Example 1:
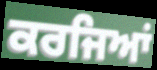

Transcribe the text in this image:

ਕਰਜਿਆਂ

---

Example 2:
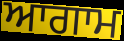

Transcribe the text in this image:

ਆਗਾਮ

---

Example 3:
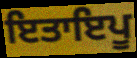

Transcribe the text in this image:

ਇਤਾਇਪੂ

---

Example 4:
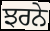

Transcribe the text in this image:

ਝਰਨੇ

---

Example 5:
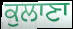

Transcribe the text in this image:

ਕੁਲਾਣਾ